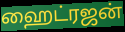
ஹைட்ரஜன்